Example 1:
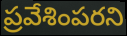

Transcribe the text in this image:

ప్రవేశింపరని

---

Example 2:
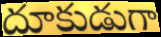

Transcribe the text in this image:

దూకుడుగా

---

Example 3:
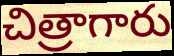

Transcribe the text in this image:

చిత్రాగారు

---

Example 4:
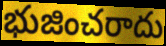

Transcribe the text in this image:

భుజించరాదు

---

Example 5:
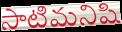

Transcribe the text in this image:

సాటిమనిషి